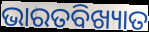
ଭାରତବିଖ୍ୟାତ